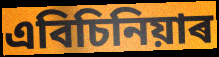
এবিচিনিয়াৰ